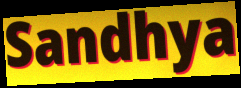
Sandhya